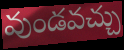
వుండవచ్చు